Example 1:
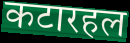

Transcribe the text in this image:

कटारहल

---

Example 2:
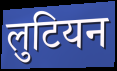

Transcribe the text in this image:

लुटियन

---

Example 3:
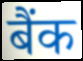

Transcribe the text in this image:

बैंक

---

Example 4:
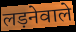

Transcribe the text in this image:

लड़नेवाले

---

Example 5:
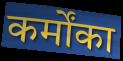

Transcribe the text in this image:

कर्मोंका